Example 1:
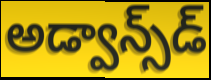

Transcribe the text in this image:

అడ్వాన్స్‌డ్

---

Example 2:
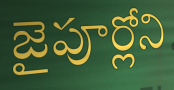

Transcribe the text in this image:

జైపూర్లోని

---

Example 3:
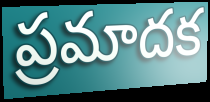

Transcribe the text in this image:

ప్రమాదక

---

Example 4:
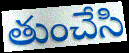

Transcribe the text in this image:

తుంచేసి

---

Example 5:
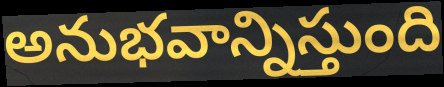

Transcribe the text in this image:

అనుభవాన్నిస్తుంది